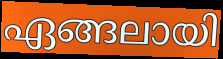
ഏങ്ങലായി